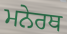
ਮਨੇਰਥ